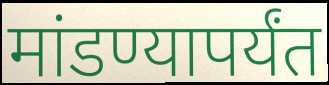
मांडण्यापर्यंत